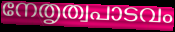
നേതൃത്വപാടവം